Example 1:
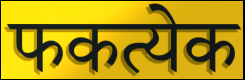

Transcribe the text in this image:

फकत्येक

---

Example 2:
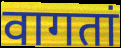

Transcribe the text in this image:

वागतां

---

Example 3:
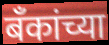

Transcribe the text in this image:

बॅँकांच्या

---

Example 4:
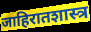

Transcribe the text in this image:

जाहिरातशास्त्र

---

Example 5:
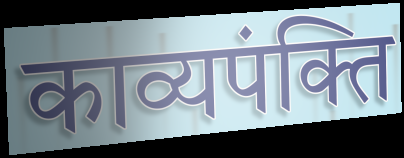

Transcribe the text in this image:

काव्यपंक्ति